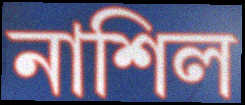
নাশিল